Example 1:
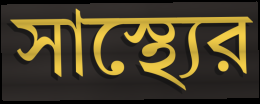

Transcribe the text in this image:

সাস্থ্যের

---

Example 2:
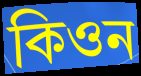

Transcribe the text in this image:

কিওন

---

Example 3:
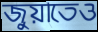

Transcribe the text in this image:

জুয়াতেও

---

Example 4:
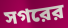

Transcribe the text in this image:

সগরের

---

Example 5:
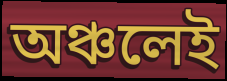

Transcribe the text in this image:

অঞ্চলেই